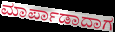
ಮಾರ್ಪಾಡಾದಾಗ